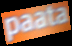
paata